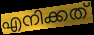
എനിക്കത്